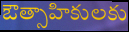
ఔత్సాహికులకు